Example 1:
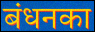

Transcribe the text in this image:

बंधनका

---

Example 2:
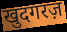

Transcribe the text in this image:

खुदगरज़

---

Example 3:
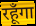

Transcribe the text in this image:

रहूँगा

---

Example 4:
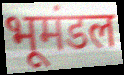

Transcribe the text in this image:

भूमंडल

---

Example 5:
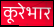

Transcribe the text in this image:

कूरेभार